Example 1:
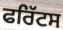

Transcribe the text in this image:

ਫਰਿੱਟਸ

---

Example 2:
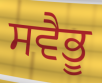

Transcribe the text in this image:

ਸਵੈਭੂ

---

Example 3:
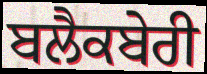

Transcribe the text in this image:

ਬਲੈਕਬੇਰੀ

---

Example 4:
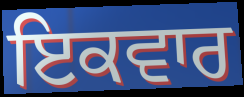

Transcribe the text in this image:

ਇਕਵਾਰ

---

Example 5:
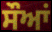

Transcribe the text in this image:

ਸੌਆਂ